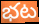
భట